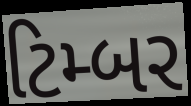
ટિમ્બર